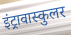
इंट्रावास्कुलर